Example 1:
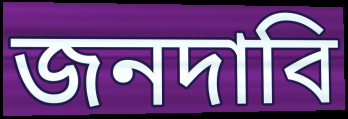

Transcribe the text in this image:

জনদাবি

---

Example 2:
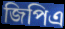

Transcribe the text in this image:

জিপিএ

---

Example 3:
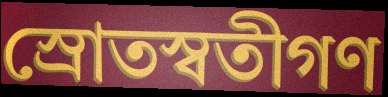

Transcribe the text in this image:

স্রোতস্বতীগণ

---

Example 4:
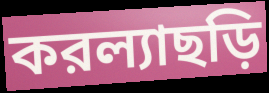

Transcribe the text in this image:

করল্যাছড়ি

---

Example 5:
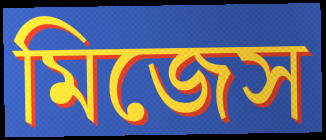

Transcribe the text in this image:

মিজেস